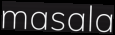
masala